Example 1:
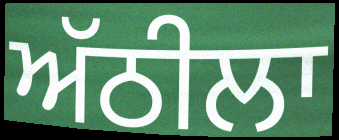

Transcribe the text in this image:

ਅੱਠੀਲਾ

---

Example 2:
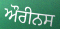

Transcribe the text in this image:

ਔਰੀਨਸ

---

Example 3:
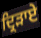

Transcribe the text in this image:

ਦ੍ਰਿੜਾਏ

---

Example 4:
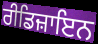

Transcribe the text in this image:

ਰੀਡਿਜ਼ਾਇਨ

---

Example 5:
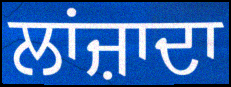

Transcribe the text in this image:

ਲਾਂਜ਼ਾਦਾ